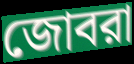
জোবরা